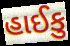
હાઈકુ